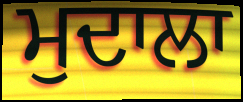
ਮੁਦਾਲਾ